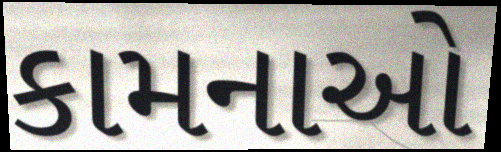
કામનાઓ